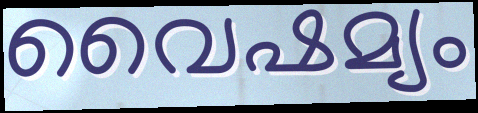
വൈഷമ്യം